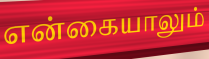
என்கையாலும்